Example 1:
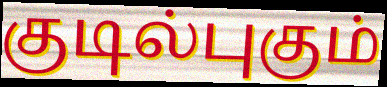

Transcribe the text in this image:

குடில்புகும்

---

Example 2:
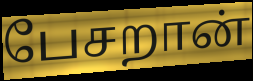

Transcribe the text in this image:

பேசறான்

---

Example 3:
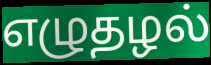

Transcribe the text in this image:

எழுதழல்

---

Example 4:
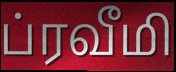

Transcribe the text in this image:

ப்ரவீமி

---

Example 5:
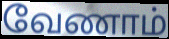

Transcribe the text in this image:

வேணாம்